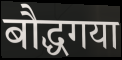
बौद्धगया